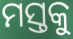
ମସ୍ତକୁ